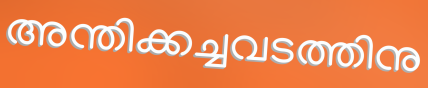
അന്തിക്കച്ചവടത്തിനു